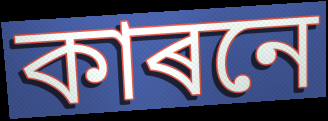
কাৰনে